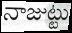
నాజుట్టు